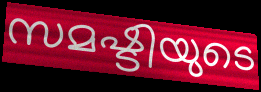
സമഷ്ടിയുടെ